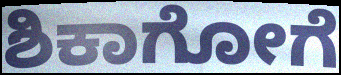
ಶಿಕಾಗೋಗೆ